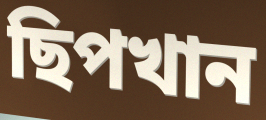
ছিপখান